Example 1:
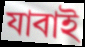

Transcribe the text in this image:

যাবাই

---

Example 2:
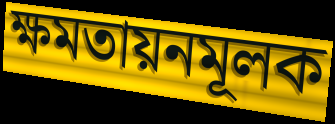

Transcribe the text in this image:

ক্ষমতায়নমূলক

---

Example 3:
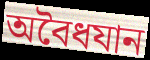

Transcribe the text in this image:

অবৈধযান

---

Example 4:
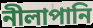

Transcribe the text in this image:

নীলাপানি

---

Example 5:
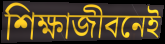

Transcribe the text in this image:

শিক্ষাজীবনেই